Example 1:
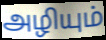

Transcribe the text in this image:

அழியும்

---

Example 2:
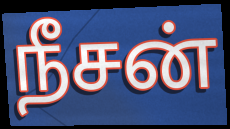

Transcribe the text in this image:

நீசன்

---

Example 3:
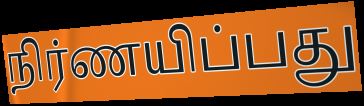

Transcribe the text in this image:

நிர்ணயிப்பது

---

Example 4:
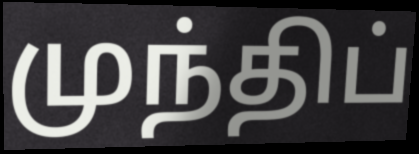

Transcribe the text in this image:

முந்திப்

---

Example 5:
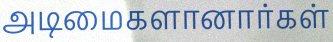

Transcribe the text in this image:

அடிமைகளானார்கள்